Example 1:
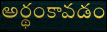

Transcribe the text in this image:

అర్థంకావడం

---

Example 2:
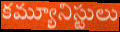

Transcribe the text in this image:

కమ్యూనిస్టులు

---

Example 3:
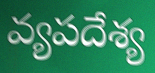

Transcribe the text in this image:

వ్యపదేశ్య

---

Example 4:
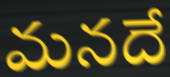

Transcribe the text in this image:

మనదే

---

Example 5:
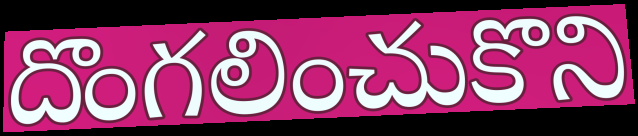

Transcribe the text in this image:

దొంగలించుకొని